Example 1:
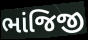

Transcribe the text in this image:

ભાંજિજી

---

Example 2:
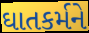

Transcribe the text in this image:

ઘાતકર્મને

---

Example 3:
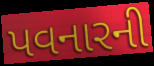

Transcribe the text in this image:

પવનારની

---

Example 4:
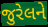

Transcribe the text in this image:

જુરેલને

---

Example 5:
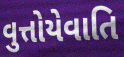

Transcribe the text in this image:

વુત્તોયેવાતિ